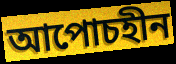
আপোচহীন